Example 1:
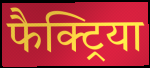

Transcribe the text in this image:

फैक्ट्रिया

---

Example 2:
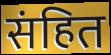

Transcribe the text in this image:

संहित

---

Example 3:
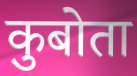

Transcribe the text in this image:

कुबोता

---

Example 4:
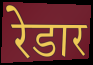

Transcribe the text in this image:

रेडार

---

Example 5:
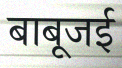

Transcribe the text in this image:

बाबूजई